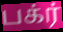
பக்ர்